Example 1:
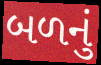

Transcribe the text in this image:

બળનું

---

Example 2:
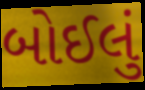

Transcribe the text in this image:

બોઈલું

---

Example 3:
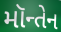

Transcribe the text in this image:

મૉન્તેન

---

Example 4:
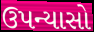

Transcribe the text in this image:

ઉપન્યાસો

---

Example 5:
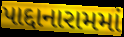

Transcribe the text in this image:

પાદ્દાનારામમાં